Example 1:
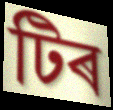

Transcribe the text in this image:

টিৰ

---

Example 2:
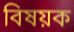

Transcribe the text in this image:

বিষয়ক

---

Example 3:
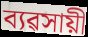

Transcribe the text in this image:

ব্যৱসায়ী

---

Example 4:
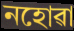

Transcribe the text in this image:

নহোৱা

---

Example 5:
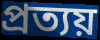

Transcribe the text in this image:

প্ৰত্যয়